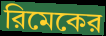
রিমেকের